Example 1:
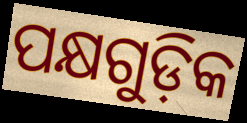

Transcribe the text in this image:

ପକ୍ଷଗୁଡ଼ିକ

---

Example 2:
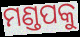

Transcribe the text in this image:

ମଣ୍ଡପକୁ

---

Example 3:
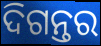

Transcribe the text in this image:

ଦିଗନ୍ତର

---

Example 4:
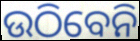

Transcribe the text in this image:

ଉଠିବେନି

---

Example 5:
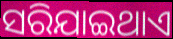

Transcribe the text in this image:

ସରିଯାଇଥାଏ